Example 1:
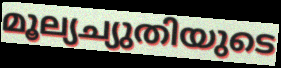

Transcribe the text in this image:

മൂല്യച്യുതിയുടെ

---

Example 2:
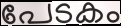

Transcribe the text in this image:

പേടകം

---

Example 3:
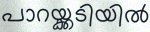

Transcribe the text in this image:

പാറയ്ക്കടിയിൽ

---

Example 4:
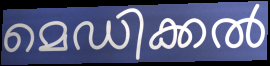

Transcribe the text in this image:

മെഡിക്കൽ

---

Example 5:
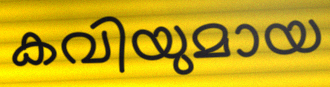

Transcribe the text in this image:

കവിയുമായ